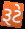
રૂટે